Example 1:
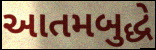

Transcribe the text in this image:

આતમબુદ્ધે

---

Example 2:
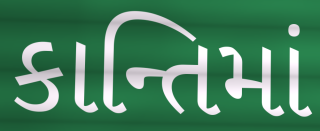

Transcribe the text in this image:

કાન્તિમાં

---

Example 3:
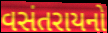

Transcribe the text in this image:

વસંતરાયનો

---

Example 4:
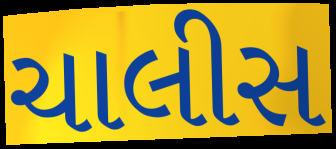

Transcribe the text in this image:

ચાલીસ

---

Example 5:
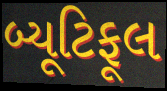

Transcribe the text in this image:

બ્યૂટિફૂલ